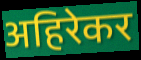
अहिरेकर